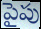
పైపు